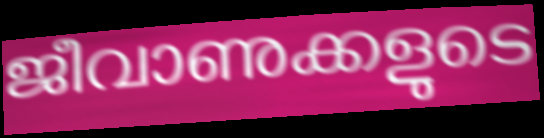
ജീവാണുക്കളുടെ